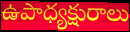
ఉపాధ్యక్షురాలు